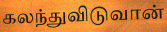
கலந்துவிடுவான்